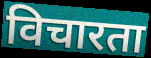
विचारता